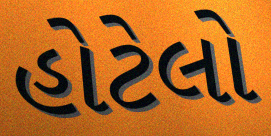
હોટેલો